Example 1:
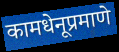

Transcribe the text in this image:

कामधेनूप्रमाणे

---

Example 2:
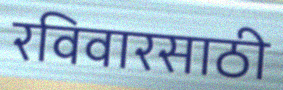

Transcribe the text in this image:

रविवारसाठी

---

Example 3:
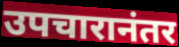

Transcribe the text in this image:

उपचारानंतर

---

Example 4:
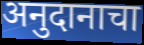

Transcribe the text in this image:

अनुदानाचा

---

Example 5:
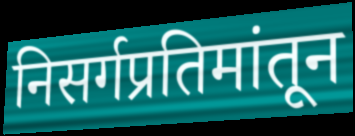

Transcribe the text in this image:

निसर्गप्रतिमांतून